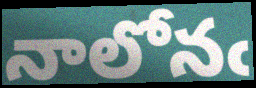
నాలోనఁ